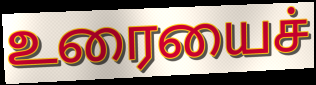
உரையைச்